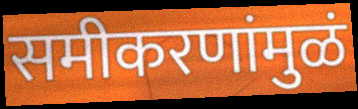
समीकरणांमुळं